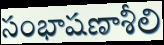
సంభాషణాశీలి